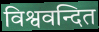
विश्ववन्दित